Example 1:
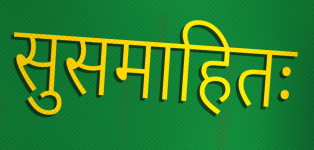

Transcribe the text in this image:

सुसमाहितः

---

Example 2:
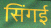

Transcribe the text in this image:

सिंगई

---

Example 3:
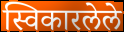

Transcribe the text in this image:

स्विकारलेले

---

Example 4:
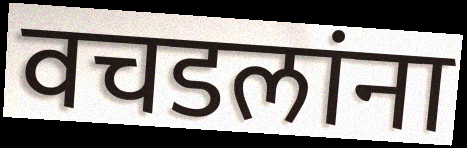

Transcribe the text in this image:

वचडलांना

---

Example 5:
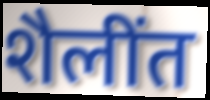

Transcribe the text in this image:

शैलींत